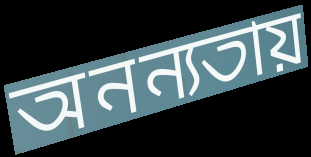
অনন্যতায়